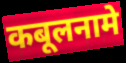
कबूलनामे